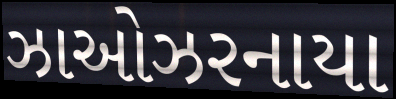
ઝાઓઝરનાયા